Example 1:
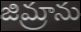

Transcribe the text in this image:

జిమ్రాను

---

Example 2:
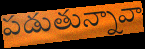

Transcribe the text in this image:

పడుతున్నావా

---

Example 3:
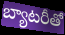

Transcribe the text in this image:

బ్యాటరీతో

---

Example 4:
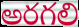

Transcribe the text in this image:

అరగలి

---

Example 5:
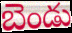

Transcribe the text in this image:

బెండు